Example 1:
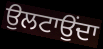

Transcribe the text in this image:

ਉਲਟਾਉਂਦਾ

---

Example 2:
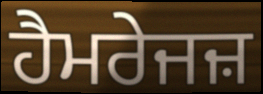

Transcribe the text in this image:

ਹੈਮਰੇਜਜ਼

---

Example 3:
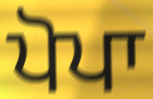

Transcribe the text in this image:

ਪੋਪਾ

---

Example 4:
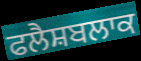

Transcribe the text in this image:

ਫਲੈਸ਼ਬਲਾਕ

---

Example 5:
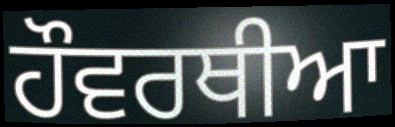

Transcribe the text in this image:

ਹੌਵਰਥੀਆ